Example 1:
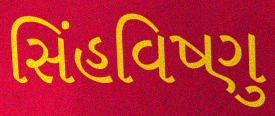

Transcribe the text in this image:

સિંહવિષ્ણુ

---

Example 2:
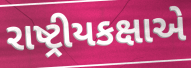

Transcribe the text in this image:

રાષ્ટ્રીયકક્ષાએ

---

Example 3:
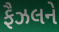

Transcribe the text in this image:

ફૈઝલને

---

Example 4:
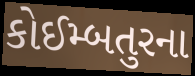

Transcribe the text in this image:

કોઈમ્બતુરના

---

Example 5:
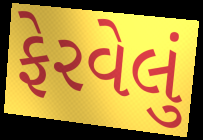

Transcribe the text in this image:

ફેરવેલું